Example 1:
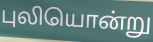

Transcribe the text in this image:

புலியொன்று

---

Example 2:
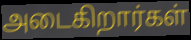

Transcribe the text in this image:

அடைகிறார்கள்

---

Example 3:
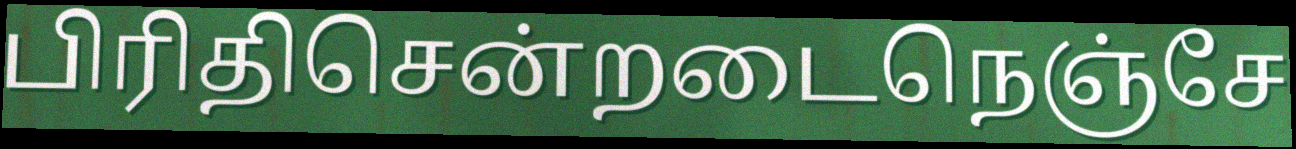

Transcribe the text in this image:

பிரிதிசென்றடைநெஞ்சே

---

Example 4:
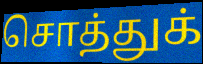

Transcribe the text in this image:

சொத்துக்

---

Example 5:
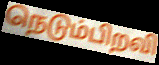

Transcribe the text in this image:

நெடும்பிறவி